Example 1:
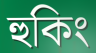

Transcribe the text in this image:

হুকিং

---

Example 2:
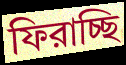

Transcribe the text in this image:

ফিরাচ্ছি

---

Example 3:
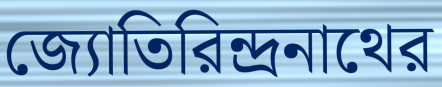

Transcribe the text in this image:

জ্যোতিরিন্দ্রনাথের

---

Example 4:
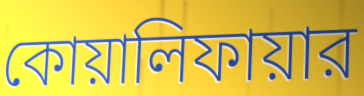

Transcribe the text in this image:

কোয়ালিফায়ার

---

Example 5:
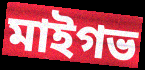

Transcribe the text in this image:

মাইগভ